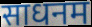
साधनम